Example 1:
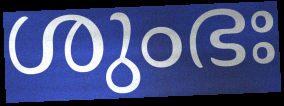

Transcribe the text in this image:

ശുംഭഃ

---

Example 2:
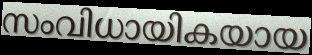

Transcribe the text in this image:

സംവിധായികയായ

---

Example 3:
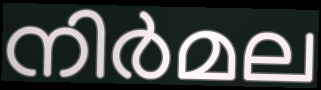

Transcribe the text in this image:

നിർമല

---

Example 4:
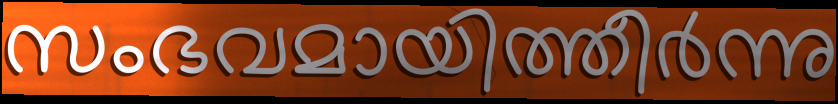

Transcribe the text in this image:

സംഭവമായിത്തീർന്നു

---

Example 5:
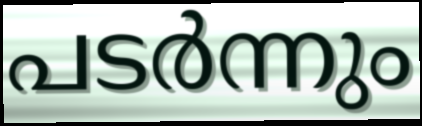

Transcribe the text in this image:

പടർന്നും